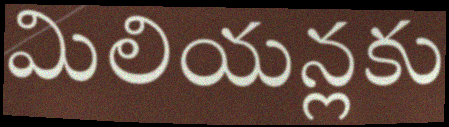
మిలియన్లకు